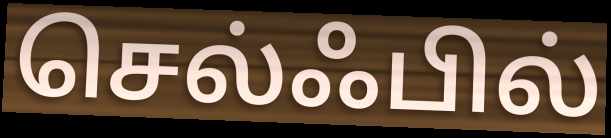
செல்ஃபில்